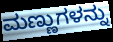
ಮಣ್ಣುಗಳನ್ನು